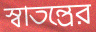
স্বাতন্ত্রের